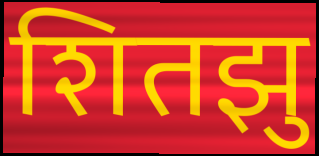
शितझु